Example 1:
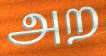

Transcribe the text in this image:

அற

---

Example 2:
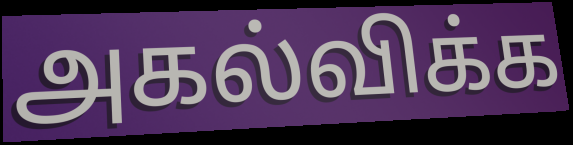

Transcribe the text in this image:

அகல்விக்க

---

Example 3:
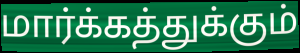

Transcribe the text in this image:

மார்க்கத்துக்கும்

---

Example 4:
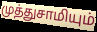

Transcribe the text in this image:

முத்துசாமியும்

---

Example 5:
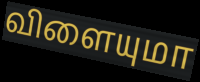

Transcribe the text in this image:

விளையுமா